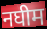
नघीम